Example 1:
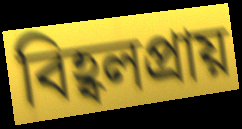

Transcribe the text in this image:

বিহ্বলপ্রায়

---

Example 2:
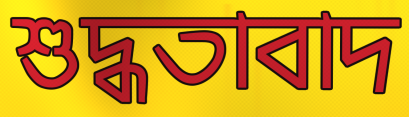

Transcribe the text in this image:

শুদ্ধতাবাদ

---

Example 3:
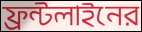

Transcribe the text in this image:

ফ্রন্টলাইনের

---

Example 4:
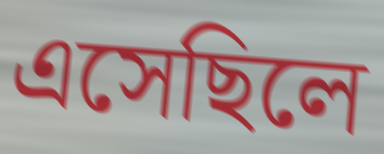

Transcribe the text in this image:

এসেছিলে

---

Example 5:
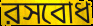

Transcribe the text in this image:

রসবোধ